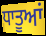
ਧਾਤੂਆਂ